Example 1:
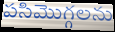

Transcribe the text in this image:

పసిమొగ్గలను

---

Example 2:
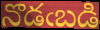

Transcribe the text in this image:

నొడఁబడి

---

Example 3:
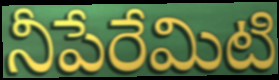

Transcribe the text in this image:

నీపేరేమిటి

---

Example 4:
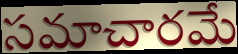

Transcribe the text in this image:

సమాచారమే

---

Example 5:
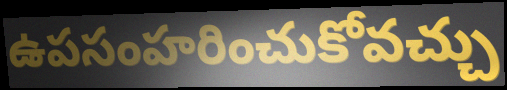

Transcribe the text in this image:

ఉపసంహరించుకోవచ్చు